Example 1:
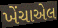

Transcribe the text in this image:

ખેંચાએલ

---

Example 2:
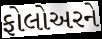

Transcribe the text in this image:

ફોલોઅરને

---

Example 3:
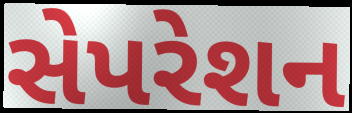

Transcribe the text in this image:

સેપરેશન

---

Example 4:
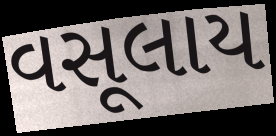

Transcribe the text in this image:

વસૂલાય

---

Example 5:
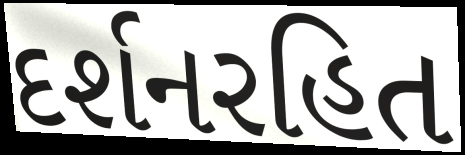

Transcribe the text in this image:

દર્શનરહિત